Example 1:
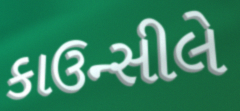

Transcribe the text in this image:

કાઉન્સીલે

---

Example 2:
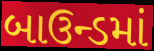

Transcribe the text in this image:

બાઉન્ડમાં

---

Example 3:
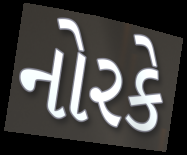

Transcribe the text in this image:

નોરકે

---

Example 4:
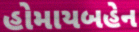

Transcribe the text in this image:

હોમાયબહેન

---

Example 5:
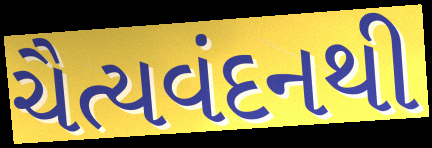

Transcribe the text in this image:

ચૈત્યવંદનથી